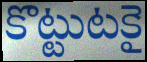
కొట్టుటకై